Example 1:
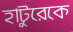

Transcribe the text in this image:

হাটুরেকে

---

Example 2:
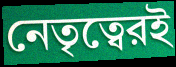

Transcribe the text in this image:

নেতৃত্বেরই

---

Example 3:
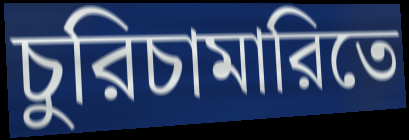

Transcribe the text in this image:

চুরিচামারিতে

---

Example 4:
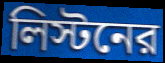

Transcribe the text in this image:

লিস্টনের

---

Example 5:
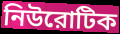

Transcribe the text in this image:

নিউরোটিক